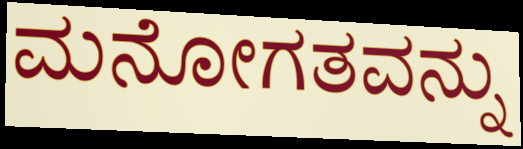
ಮನೋಗತವನ್ನು